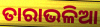
ତାରାଭଳିଆ